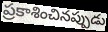
ప్రకాశించినప్పుడు